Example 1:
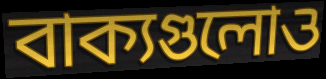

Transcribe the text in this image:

বাক্যগুলোও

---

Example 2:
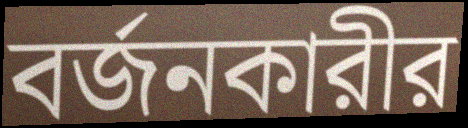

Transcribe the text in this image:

বর্জনকারীর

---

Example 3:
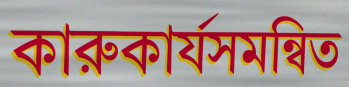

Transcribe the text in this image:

কারুকার্যসমন্বিত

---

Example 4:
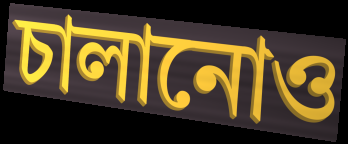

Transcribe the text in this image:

চালানোও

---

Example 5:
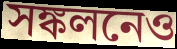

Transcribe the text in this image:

সঙ্কলনেও